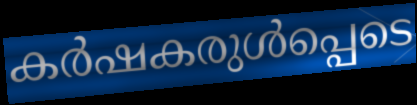
കർഷകരുൾപ്പെടെ